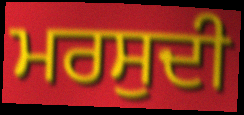
ਮਰਸੁਦੀ